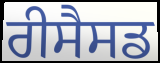
ਰੀਸੈਸਡ